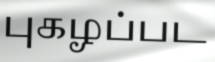
புகழப்பட